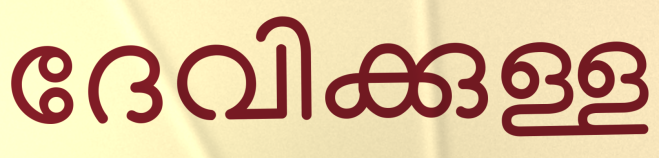
ദേവിക്കുള്ള